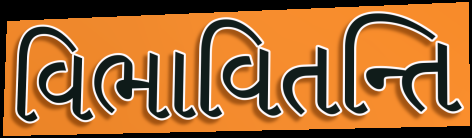
વિભાવિતન્તિ